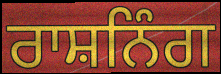
ਰਾਸ਼ਨਿੰਗ